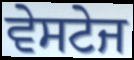
ਵੇਸਟੇਜ